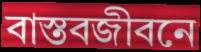
বাস্তবজীবনে